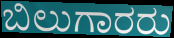
ಬಿಲುಗಾರರು